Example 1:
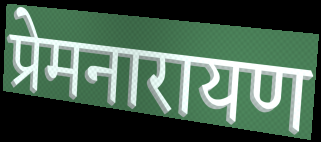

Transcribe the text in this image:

प्रेमनारायण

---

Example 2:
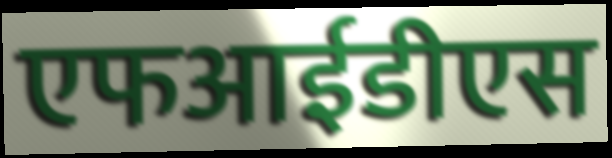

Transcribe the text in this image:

एफआईडीएस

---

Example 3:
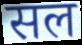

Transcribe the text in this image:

सल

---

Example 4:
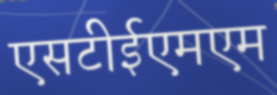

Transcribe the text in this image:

एसटीईएमएम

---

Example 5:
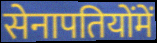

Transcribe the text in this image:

सेनापतियोंमें